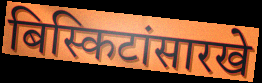
बिस्किटांसारखे